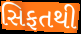
સિફતથી